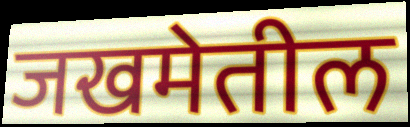
जखमेतील